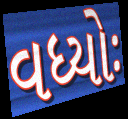
વધ્યોઃ